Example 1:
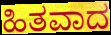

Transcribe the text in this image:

ಹಿತವಾದ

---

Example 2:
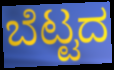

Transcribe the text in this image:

ಬೆಟ್ಟದ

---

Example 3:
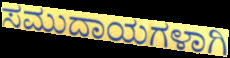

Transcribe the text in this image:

ಸಮುದಾಯಗಳಾಗಿ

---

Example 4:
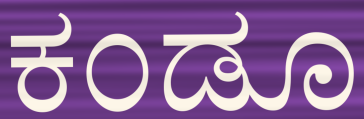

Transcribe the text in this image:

ಕಂಡೂ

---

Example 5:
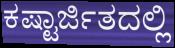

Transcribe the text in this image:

ಕಷ್ಟಾರ್ಜಿತದಲ್ಲಿ